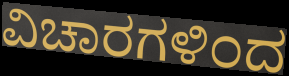
ವಿಚಾರಗಳಿಂದ